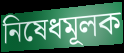
নিষেধমূলক